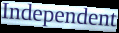
Independent